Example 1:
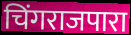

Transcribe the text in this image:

चिंगराजपारा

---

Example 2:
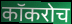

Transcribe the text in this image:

कॉकरोच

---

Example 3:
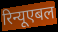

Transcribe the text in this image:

रिन्यूएबल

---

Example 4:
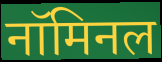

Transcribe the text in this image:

नॉमिनल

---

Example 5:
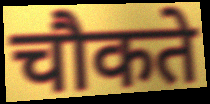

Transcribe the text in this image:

चौकते